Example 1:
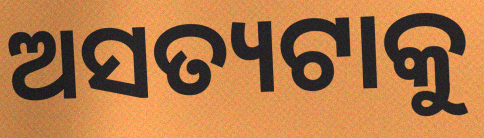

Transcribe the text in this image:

ଅସତ୍ୟଟାକୁ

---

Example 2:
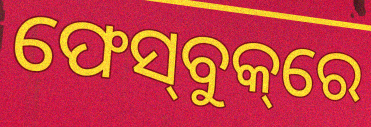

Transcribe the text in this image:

ଫେସ୍‌ବୁକ୍‌ରେ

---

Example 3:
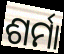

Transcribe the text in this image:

ଶର୍ମା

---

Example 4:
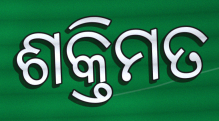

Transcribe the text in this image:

ଶକ୍ତିମତ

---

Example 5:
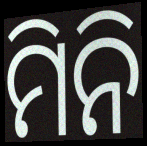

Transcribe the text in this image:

ମିନି